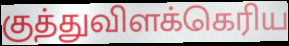
குத்துவிளக்கெரிய